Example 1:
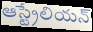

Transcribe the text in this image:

ఆస్ట్రేలియన్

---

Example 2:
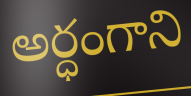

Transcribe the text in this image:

అర్ధంగాని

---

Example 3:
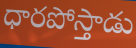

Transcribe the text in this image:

ధారపోస్తాడు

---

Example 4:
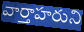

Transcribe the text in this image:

వార్తాహరుని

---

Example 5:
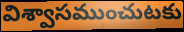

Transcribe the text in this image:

విశ్వాసముంచుటకు